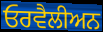
ਓਰਵੈਲੀਅਨ